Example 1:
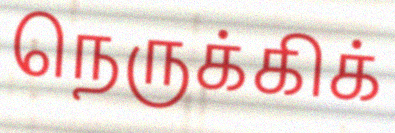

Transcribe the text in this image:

நெருக்கிக்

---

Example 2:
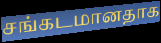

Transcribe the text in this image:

சங்கடமானதாக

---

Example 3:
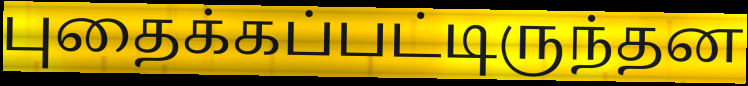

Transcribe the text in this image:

புதைக்கப்பட்டிருந்தன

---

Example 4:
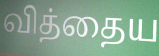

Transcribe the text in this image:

வித்தைய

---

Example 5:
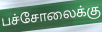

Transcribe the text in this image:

பச்சோலைக்கு